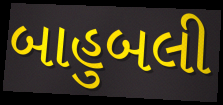
બાહુબલી